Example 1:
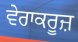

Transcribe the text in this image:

ਵੇਰਾਕਰੂਜ਼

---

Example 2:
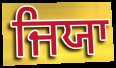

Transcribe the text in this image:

ਜਿਯਾ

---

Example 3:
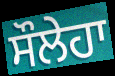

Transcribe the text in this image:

ਸੌਲੇਹਾ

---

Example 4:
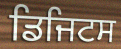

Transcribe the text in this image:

ਡਿਜਿਟਸ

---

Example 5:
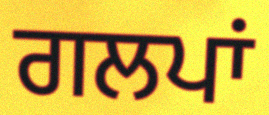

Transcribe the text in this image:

ਗਲਪਾਂ